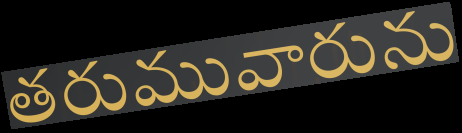
తరుమువారును